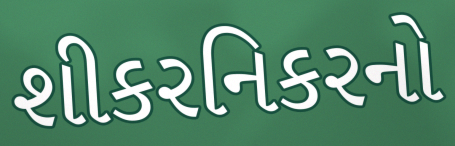
શીકરનિકરનો